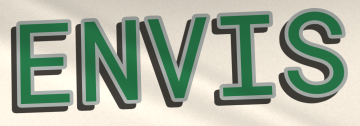
ENVIS